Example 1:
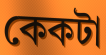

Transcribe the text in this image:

কেকটা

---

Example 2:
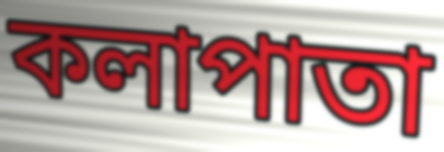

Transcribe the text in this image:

কলাপাতা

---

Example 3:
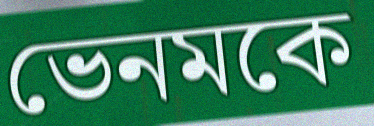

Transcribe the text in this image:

ভেনমকে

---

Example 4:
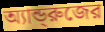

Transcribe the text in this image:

অ্যান্ড্‌রুজের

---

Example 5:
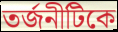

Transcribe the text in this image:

তর্জনীটিকে